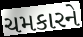
ચમકારને